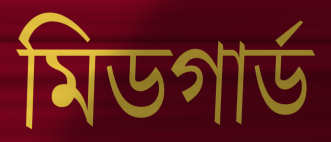
মিডগার্ড